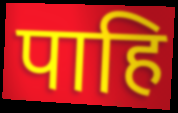
पाहि